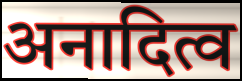
अनादित्व